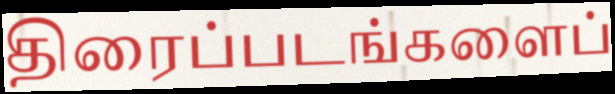
திரைப்படங்களைப்